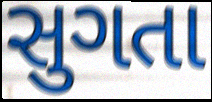
સુગતા